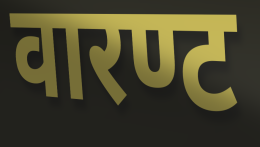
वारण्ट